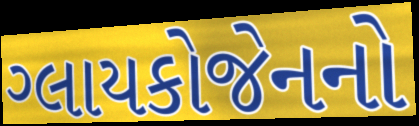
ગ્લાયકોજેનનો